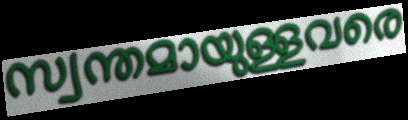
സ്വന്തമായുള്ളവരെ